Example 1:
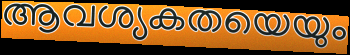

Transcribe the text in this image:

ആവശ്യകതയെയും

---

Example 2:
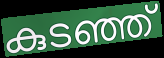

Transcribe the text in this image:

കുടഞ്ഞ്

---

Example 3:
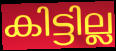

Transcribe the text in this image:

കിട്ടില്ല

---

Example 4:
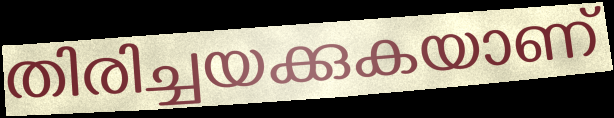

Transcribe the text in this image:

തിരിച്ചയക്കുകയാണ്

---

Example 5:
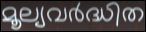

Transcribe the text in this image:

മൂല്യവർദ്ധിത